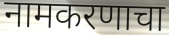
नामकरणाचा